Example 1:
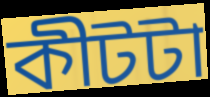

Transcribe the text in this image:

কীটটা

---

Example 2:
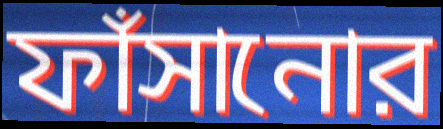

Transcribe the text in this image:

ফাঁসানোর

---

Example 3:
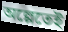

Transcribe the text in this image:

অল্পেতেই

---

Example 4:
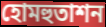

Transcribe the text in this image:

হোমহুতাশন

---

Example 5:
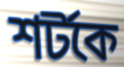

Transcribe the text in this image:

শর্টকে